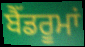
ਬੈੱਡਰੂਮਾਂ